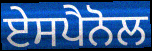
ਏਸਪੈਨੋਲ